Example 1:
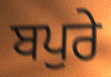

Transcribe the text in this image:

ਬਪੁਰੇ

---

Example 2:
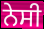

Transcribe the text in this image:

ਨੇਸੀ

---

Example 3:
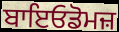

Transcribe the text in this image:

ਬਾਇਓਡੋਮਜ਼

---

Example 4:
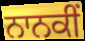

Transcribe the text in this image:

ਨਾਨਕੀਂ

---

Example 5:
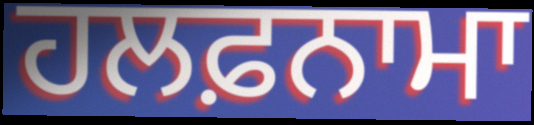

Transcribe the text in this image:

ਹਲਫ਼ਨਾਮਾ